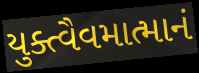
યુક્ત્વૈવમાત્માનં